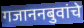
गजाननबुवांचे